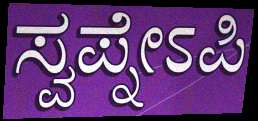
ಸ್ವಪ್ನೇಽಪಿ